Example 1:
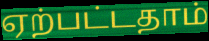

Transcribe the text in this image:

ஏற்பட்டதாம்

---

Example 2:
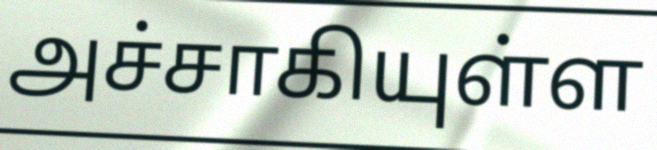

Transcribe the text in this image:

அச்சாகியுள்ள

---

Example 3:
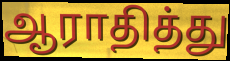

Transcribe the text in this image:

ஆராதித்து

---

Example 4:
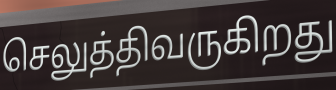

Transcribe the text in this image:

செலுத்திவருகிறது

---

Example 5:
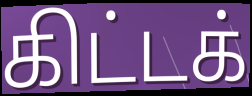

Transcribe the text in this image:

கிட்டக்